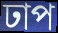
ঢাপ